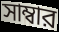
সাম্বার